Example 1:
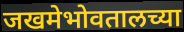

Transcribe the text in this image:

जखमेभोवतालच्या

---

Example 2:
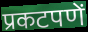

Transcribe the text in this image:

प्रकटपणें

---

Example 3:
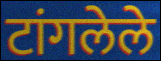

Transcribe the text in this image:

टांगलेले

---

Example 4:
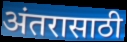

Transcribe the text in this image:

अंतरासाठी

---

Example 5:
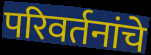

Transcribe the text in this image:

परिवर्तनांचे